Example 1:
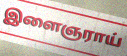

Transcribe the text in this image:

இளைஞராய்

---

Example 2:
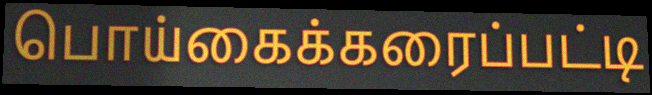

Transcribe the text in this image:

பொய்கைக்கரைப்பட்டி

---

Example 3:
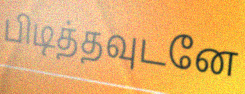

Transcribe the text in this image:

பிடித்தவுடனே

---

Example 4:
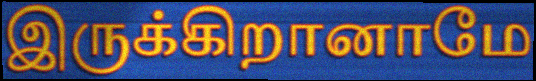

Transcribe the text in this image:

இருக்கிறானாமே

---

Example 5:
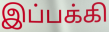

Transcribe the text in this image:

இப்பக்கி